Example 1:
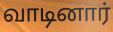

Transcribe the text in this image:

வாடினார்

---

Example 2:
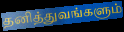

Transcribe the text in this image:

தனித்துவங்களும்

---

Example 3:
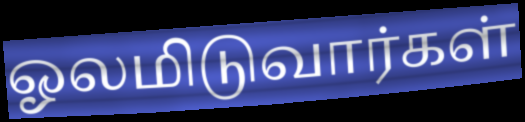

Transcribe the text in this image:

ஓலமிடுவார்கள்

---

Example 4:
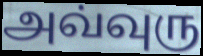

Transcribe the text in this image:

அவ்வுரு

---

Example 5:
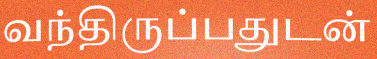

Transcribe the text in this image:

வந்திருப்பதுடன்